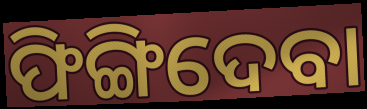
ଫିଙ୍ଗିଦେବା